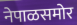
नेपाळसमोर